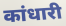
कांधारी